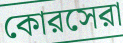
কোরসেরা